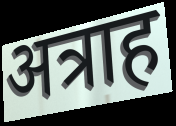
अत्राह